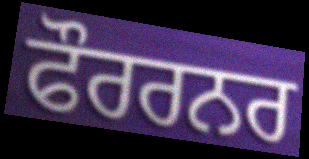
ਫੌਰਰਨਰ